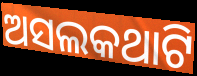
ଅସଲକଥାଟି